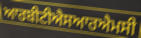
ਆਰਬੀਟੀਐਸਆਰਐਮਸੀ